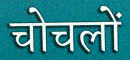
चोचलों